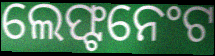
ଲେଫ୍ଟନେଂଟ